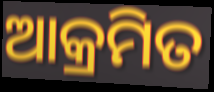
ଆକ୍ରମିତ